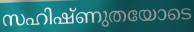
സഹിഷ്ണുതയോടെ